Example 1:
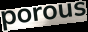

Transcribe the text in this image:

porous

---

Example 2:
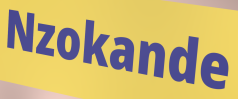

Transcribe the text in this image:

Nzokande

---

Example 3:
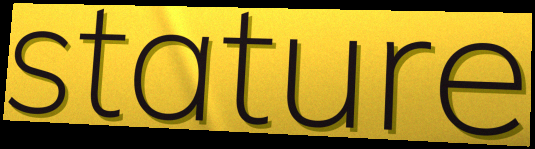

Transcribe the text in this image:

stature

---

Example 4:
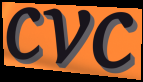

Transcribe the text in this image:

cvc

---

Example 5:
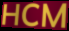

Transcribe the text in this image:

HCM